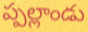
ప్పల్లాండు